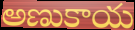
అణుకాయ